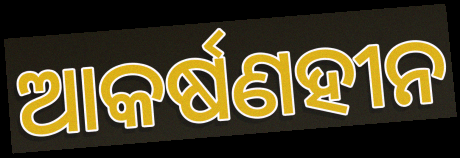
ଆକର୍ଷଣହୀନ